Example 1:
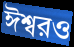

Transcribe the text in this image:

ঈশ্বরও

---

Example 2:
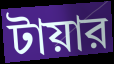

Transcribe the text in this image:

টায়ার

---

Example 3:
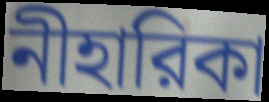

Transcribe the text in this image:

নীহারিকা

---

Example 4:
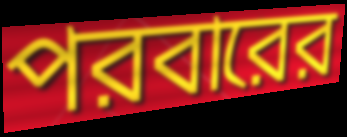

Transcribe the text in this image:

পরবারের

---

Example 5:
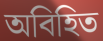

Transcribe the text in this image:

অবিহিত